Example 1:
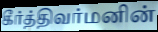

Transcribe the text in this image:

கீர்த்திவர்மனின்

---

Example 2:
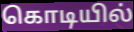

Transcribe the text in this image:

கொடியில்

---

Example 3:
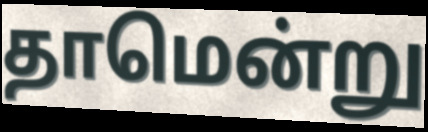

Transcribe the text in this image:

தாமென்று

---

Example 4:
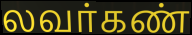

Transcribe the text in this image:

லவர்கண்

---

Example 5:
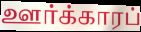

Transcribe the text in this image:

ஊர்க்காரப்